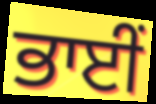
ਭਾਈੰ